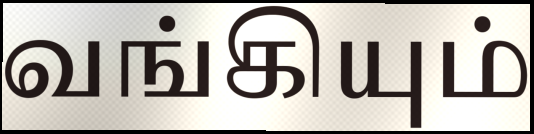
வங்கியும்